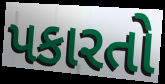
પકારતો